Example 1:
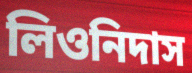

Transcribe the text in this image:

লিওনিদাস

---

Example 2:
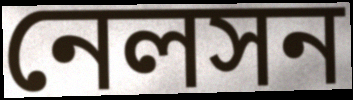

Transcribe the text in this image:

নেলসন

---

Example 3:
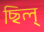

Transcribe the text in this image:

ছিল্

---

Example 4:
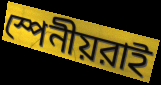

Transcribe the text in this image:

স্পেনীয়রাই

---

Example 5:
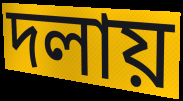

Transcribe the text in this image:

দলায়